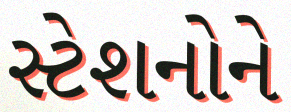
સ્ટેશનોને